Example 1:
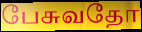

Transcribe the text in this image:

பேசுவதோ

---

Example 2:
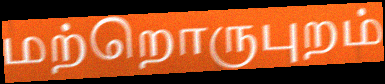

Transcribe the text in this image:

மற்றொருபுறம்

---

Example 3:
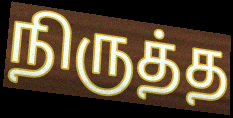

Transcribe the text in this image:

நிருத்த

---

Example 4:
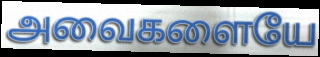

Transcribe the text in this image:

அவைகளையே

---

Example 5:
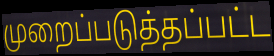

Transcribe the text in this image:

முறைப்படுத்தப்பட்ட